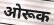
ओरूक